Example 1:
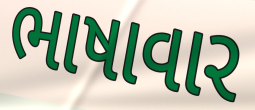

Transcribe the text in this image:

ભાષાવાર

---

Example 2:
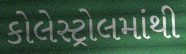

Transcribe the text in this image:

કોલેસ્ટ્રોલમાંથી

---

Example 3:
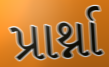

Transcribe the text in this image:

પ્રાર્થ્ના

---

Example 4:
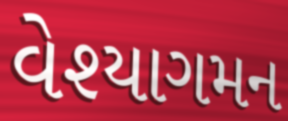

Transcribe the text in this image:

વેશ્યાગમન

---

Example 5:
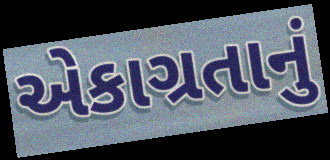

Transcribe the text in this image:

એકાગ્રતાનું